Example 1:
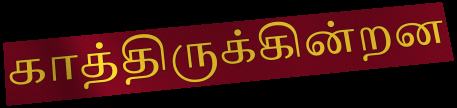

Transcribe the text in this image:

காத்திருக்கின்றன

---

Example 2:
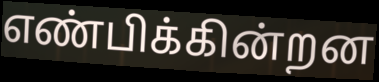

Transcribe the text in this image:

எண்பிக்கின்றன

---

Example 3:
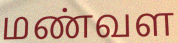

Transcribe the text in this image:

மண்வள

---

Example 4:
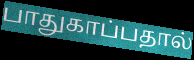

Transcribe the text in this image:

பாதுகாப்பதால்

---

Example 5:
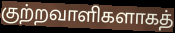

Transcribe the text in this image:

குற்றவாளிகளாகத்